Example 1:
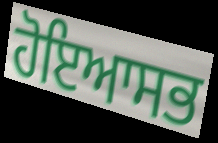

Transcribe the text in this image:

ਹੋਇਆਸਭ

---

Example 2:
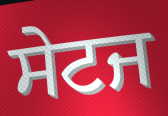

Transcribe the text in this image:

ਸੇਟਜ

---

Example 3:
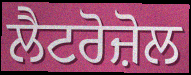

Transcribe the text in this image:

ਲੈਟਰੋਜ਼ੋਲ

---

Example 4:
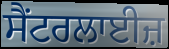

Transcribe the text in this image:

ਸੈਂਟਰਲਾਈਜ਼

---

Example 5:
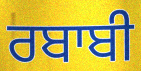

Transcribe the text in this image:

ਰਬਾਬੀ